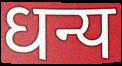
धन्य